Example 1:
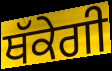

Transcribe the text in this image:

ਥੱਕੇਗੀ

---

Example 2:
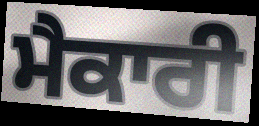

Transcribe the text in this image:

ਮੈਕਾਰੀ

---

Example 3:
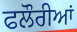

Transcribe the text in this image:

ਫਲੌਰੀਆਂ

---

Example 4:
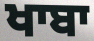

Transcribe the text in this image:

ਖਾਬਾ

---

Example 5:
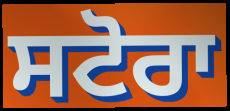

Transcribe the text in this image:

ਸਟੋਰਾ